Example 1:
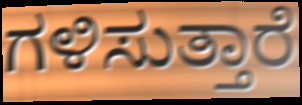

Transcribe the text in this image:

ಗಳಿಸುತ್ತಾರೆ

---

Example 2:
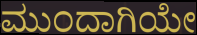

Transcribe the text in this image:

ಮುಂದಾಗಿಯೇ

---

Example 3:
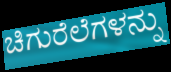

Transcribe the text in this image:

ಚಿಗುರೆಲೆಗಳನ್ನು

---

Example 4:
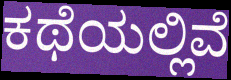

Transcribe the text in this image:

ಕಥೆಯಲ್ಲಿವೆ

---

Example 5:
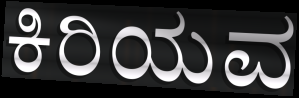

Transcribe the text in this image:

ಕಿರಿಯವ